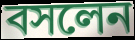
বসলেন